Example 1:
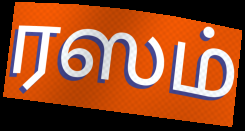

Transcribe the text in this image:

ரஸம்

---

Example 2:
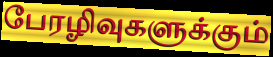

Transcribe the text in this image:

பேரழிவுகளுக்கும்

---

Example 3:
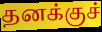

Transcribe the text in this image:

தனக்குச்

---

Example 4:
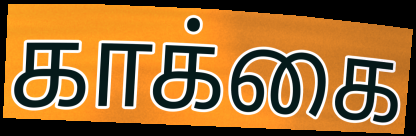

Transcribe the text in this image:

காக்கை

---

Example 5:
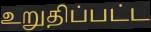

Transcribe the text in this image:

உறுதிப்பட்ட